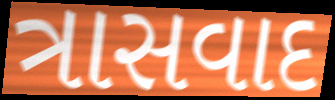
ત્રાસવાદ